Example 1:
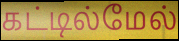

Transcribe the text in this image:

கட்டில்மேல்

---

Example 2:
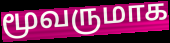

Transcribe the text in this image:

மூவருமாக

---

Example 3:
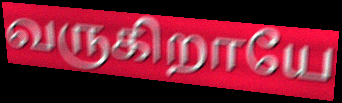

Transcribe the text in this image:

வருகிறாயே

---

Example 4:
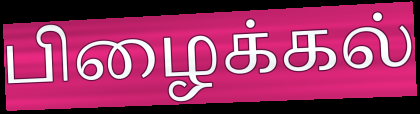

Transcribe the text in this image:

பிழைக்கல்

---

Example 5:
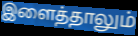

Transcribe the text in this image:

இளைத்தாலும்